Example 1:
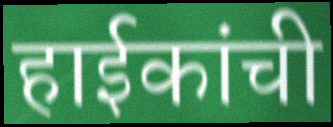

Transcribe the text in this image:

हाईकांची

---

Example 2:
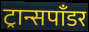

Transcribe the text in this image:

ट्रान्सपाँडर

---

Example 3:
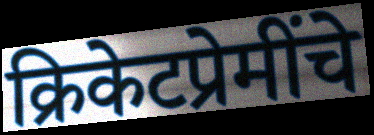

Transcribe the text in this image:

क्रिकेटप्रेमींचे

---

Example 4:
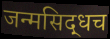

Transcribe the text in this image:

जन्मसिद्धच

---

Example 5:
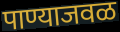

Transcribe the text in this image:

पाण्याजवळ